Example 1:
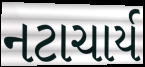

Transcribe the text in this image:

નટાચાર્ય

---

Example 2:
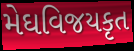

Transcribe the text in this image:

મેઘવિજયકૃત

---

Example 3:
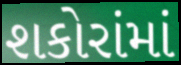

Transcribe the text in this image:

શકોરાંમાં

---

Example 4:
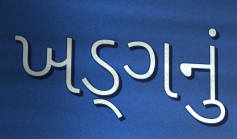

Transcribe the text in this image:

ખડ્ગનું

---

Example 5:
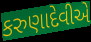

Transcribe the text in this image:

કરુણાદેવીએ